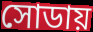
সোডায়